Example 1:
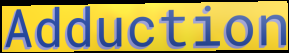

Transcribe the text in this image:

Adduction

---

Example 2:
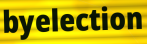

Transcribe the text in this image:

byelection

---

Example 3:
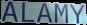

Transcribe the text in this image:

ALAMY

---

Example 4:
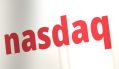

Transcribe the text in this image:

nasdaq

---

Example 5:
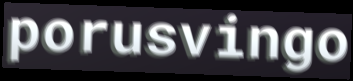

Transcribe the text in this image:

porusvingo